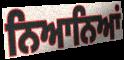
ਨਿਆਨਿਆਂ